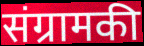
संग्रामकी